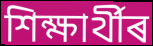
শিক্ষাৰ্থীৰ